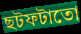
ছটফটাতো